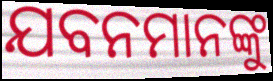
ଯବନମାନଙ୍କୁ